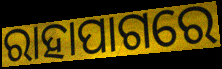
ରାହାପାଗରେ